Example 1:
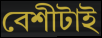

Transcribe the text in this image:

বেশীটাই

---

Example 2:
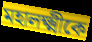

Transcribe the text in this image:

মহালক্ষ্মীকে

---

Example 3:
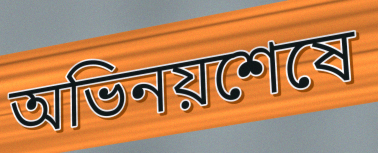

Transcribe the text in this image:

অভিনয়শেষে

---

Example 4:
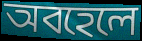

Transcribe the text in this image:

অবহেলে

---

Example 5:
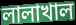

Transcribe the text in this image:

লালাখাল